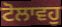
ਟੋਲਾਵਹੁ